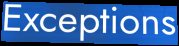
Exceptions